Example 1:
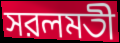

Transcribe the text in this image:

সরলমতী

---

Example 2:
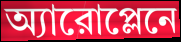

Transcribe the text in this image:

অ্যারোপ্লেনে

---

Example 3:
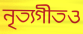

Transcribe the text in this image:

নৃত্যগীতও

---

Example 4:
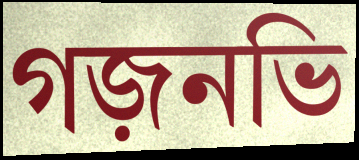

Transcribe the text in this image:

গজ়নভি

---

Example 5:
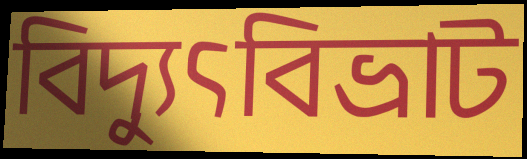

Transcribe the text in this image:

বিদ্যুৎবিভ্রাট